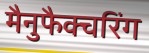
मैनुफैक्चरिंग